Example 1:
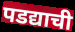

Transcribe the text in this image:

पडद्याची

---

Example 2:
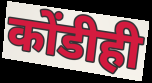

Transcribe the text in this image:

कोंडीही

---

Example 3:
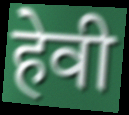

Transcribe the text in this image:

हेवी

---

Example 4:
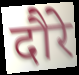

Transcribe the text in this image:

दौरे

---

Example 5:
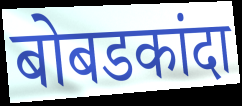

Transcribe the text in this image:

बोबडकांदा